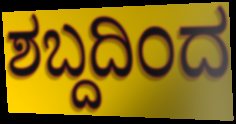
ಶಬ್ದದಿಂದ